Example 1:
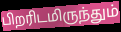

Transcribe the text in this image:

பிறரிடமிருந்தும்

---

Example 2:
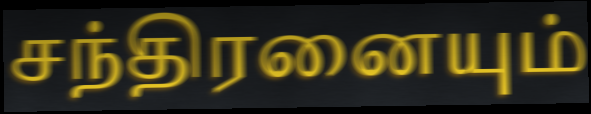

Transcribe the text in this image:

சந்திரனையும்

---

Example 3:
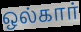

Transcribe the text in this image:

ஒல்கார்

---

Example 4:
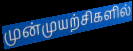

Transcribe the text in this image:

முன்முயற்சிகளில்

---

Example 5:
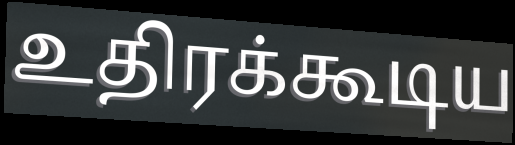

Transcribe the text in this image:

உதிரக்கூடிய